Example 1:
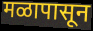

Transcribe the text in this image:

मळापासून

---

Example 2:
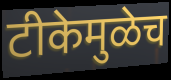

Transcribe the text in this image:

टीकेमुळेच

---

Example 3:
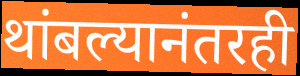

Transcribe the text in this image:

थांबल्यानंतरही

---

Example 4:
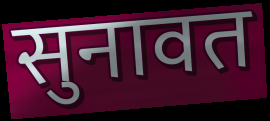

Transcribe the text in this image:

सुनावत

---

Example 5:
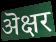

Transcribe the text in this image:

ऄक्षर